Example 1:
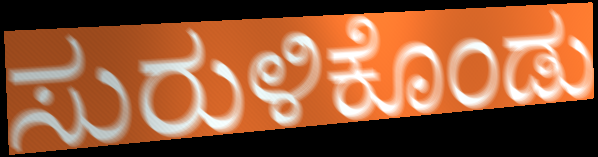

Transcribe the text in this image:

ಸುರುಳಿಕೊಂಡು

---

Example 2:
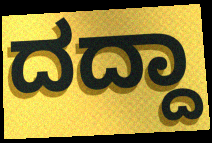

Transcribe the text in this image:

ದದ್ದಾ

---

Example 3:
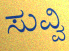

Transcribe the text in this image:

ಸುವ್ವಿ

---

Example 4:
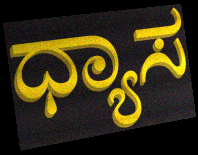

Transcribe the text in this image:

ಧ್ಯಾಸ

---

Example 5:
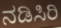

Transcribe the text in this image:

ನಡಿಸಿರಿ